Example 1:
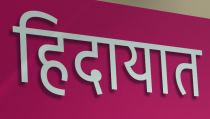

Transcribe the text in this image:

हिदायात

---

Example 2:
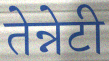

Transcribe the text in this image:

तेन्नेटी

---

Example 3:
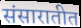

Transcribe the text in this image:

संसारातीत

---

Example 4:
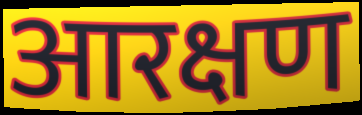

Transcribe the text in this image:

आरक्षण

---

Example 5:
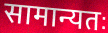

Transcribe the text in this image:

सामान्यतः